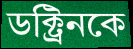
ডক্ট্রিনকে